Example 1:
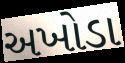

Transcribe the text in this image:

અખોડા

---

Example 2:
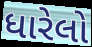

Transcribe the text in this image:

ધારેલો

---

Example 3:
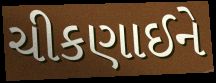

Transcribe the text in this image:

ચીકણાઈને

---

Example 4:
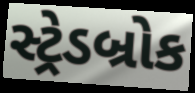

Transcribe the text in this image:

સ્ટ્રેડબ્રોક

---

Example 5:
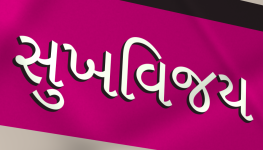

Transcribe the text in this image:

સુખવિજય